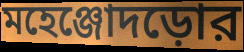
মহেঞ্জোদড়োর